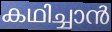
കഥിച്ചാൻ